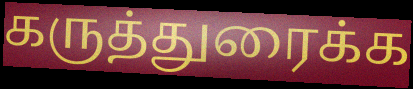
கருத்துரைக்க